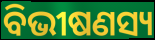
ବିଭୀଷଣସ୍ୟ